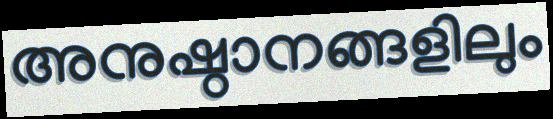
അനുഷ്ഠാനങ്ങളിലും